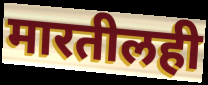
मारतीलही